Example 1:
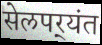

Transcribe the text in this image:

सेलपर्यंत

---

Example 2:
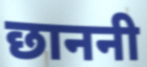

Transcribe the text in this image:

छाननी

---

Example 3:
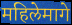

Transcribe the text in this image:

महिलेमागे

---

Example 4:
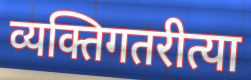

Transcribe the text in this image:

व्यक्तिगतरीत्या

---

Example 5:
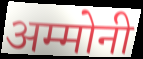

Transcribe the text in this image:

अम्मोनी